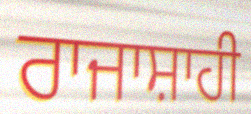
ਰਾਜਾਸ਼ਾਹੀ